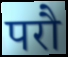
परौ